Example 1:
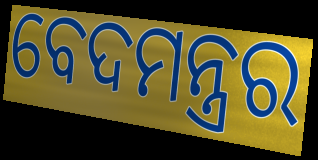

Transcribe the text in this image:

ବେଦମନ୍ତ୍ରର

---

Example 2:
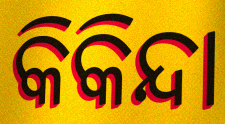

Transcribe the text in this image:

କିକିନ୍ଦା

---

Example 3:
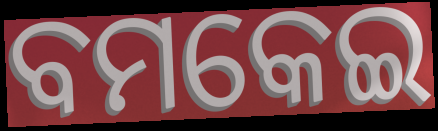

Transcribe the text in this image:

ବମକେଇ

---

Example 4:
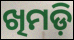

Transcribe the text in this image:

ଖିମଡ଼ି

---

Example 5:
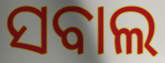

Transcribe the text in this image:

ସବାଲ